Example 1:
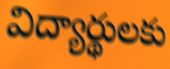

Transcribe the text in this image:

విద్యార్థులకు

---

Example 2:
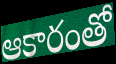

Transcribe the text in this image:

ఆకారంతో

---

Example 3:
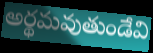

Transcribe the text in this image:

అర్థమవుతుండేవి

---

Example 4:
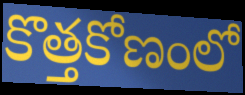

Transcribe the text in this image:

కొత్తకోణంలో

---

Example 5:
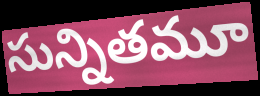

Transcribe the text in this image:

సున్నితమూ